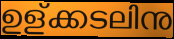
ഉള്ക്കടലിനു